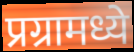
प्रग्रामध्ये